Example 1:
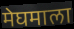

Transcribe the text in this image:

मेघमाला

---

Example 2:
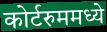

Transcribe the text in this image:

कोर्टरुममध्ये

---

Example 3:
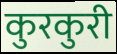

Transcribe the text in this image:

कुरकुरी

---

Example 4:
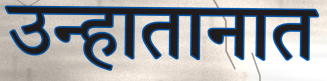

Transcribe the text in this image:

उन्हातानात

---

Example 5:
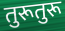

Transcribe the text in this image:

तुरूतुरू